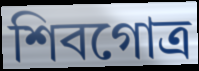
শিবগোত্র